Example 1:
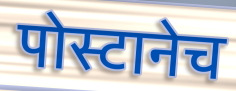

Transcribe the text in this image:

पोस्टानेच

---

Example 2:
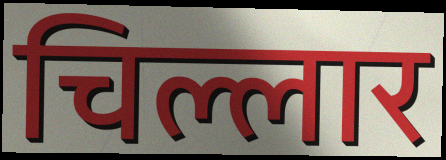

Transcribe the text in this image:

चिल्लार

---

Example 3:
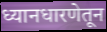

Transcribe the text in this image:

ध्यानधारणेतून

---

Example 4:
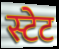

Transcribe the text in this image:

स्टेट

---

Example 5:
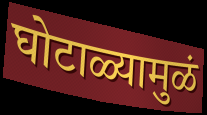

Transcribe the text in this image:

घोटाळ्यामुळं